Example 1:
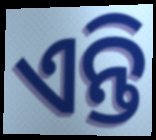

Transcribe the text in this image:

ଏନ୍ତି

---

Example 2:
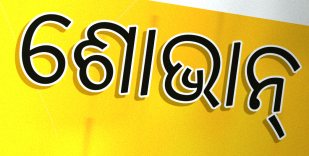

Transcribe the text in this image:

ଶୋଭାନ୍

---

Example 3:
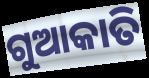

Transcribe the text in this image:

ଗୁଆକାତି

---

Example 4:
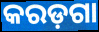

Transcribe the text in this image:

କରଡ଼ଗା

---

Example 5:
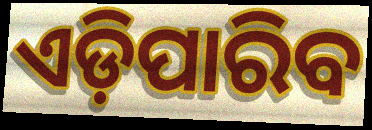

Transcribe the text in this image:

ଏଡ଼ିପାରିବ